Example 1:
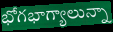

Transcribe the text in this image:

భోగభాగ్యాలున్నా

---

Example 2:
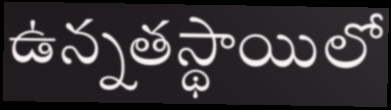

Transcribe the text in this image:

ఉన్నతస్థాయిలో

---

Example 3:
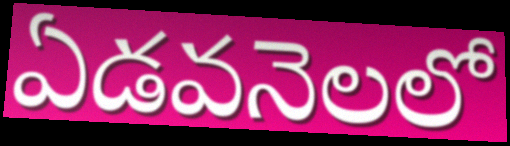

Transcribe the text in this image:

ఏడవనెలలో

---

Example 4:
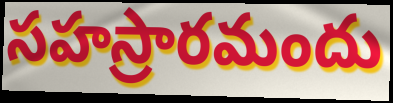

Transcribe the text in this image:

సహస్రారమందు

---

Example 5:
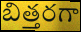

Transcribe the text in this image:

బిత్తరగా